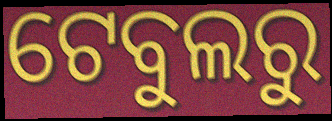
ଟେବୁଲରୁ